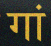
गां